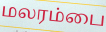
மலரம்பை